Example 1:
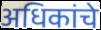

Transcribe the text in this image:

अधिकांचे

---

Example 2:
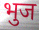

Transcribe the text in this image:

भुज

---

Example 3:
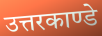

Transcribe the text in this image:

उत्तरकाण्डे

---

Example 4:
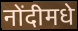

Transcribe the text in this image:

नोंदीमधे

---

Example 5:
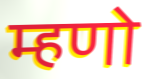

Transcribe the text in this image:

म्हणो